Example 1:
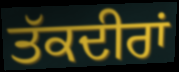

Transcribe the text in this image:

ਤੱਕਦੀਰਾਂ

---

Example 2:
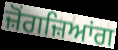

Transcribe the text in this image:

ਜ਼ੋਂਗਜ਼ਿਆਂਗ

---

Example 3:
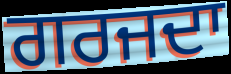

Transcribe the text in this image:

ਗਰਜਦਾ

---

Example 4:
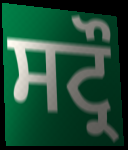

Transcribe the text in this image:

ਸਟ੍ਰੌ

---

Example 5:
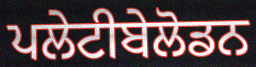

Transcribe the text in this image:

ਪਲੇਟੀਬੇਲੋਡਨ